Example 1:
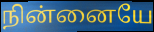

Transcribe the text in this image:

நின்னையே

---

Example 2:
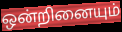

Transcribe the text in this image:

ஒன்றினையும்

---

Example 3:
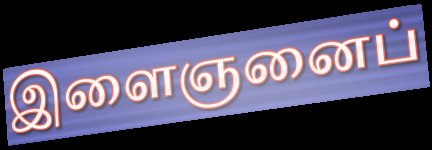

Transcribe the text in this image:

இளைஞனைப்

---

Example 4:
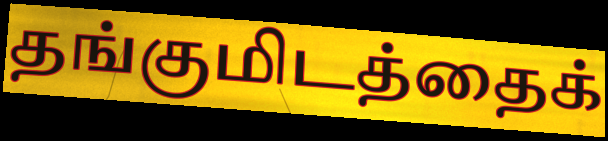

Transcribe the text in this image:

தங்குமிடத்தைக்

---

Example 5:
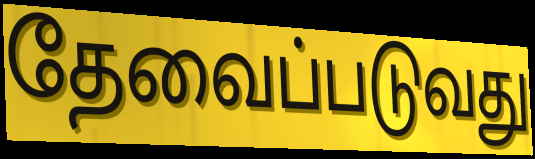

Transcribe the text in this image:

தேவைப்படுவது